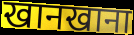
खानखाना